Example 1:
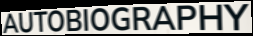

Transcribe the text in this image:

AUTOBIOGRAPHY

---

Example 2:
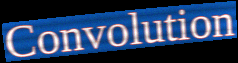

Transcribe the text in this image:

Convolution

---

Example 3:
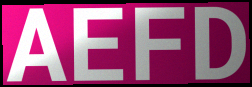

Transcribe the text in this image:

AEFD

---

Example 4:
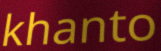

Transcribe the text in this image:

khanto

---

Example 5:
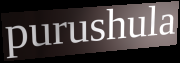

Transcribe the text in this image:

purushula